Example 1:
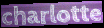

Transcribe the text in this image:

charlotte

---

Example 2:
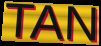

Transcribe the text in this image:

TAN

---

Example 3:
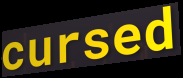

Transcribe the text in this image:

cursed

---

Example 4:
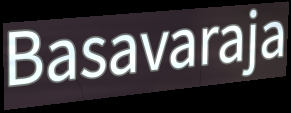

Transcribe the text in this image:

Basavaraja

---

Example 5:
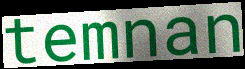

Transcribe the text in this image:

temnan